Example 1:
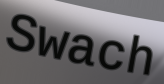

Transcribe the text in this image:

Swach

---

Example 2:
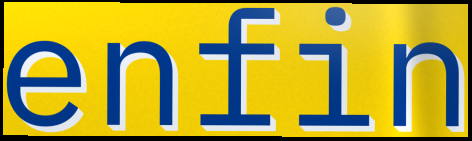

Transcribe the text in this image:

enfin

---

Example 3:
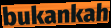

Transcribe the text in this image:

bukankah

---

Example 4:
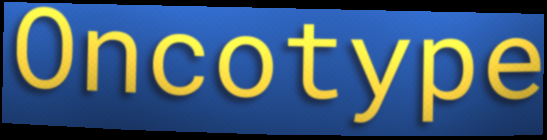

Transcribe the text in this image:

Oncotype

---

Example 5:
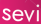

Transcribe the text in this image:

sevi